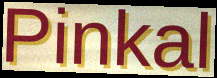
Pinkal